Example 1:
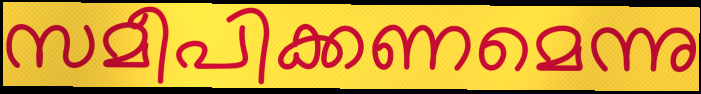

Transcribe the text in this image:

സമീപിക്കണമെന്നു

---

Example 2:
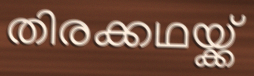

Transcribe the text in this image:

തിരക്കഥയ്ക്ക്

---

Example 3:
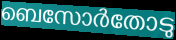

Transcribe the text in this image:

ബെസോർതോടു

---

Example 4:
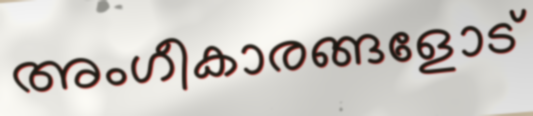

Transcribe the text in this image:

അംഗീകാരങ്ങളോട്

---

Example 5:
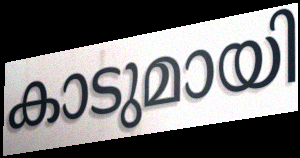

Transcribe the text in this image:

കാടുമായി